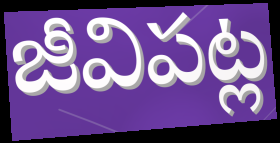
జీవిపట్ల